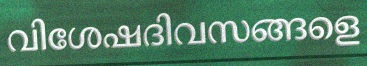
വിശേഷദിവസങ്ങളെ